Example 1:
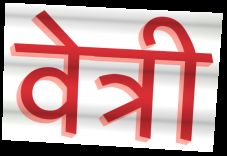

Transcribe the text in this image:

वेत्री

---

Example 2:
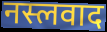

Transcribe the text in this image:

नस्लवाद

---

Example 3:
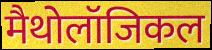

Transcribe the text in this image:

मैथोलॉजिकल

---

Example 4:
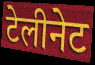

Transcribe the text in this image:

टेलीनेट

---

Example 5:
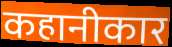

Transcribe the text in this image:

कहानीकार